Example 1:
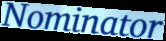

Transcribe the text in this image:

Nominator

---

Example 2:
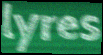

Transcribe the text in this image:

lyres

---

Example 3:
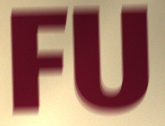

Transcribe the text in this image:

FU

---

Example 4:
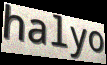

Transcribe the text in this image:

halyo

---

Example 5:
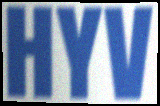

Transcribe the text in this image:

HYV